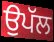
ਉਪੱਲ